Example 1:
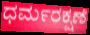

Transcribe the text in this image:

ಧರ್ಮರಕ್ಷಣೆ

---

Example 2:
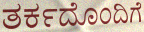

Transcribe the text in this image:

ತರ್ಕದೊಂದಿಗೆ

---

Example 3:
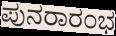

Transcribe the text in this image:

ಪುನರಾರಂಭ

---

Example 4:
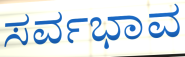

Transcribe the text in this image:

ಸರ್ವಭಾವ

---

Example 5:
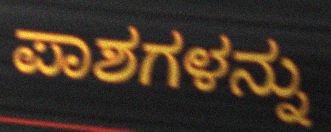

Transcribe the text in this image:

ಪಾಶಗಳನ್ನು